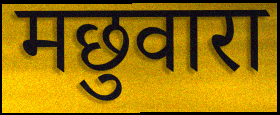
मछुवारा